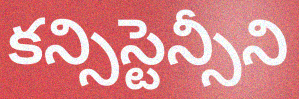
కన్సిస్టెన్సీని